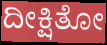
ದೀಕ್ಷಿತೋ